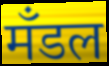
मँडल